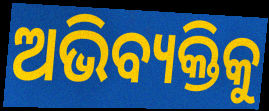
ଅଭିବ୍ୟକ୍ତିକୁ